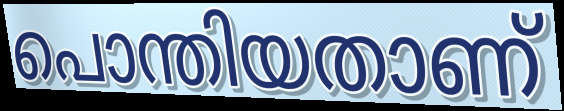
പൊന്തിയതാണ്